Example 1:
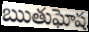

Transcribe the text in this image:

ఋతుఘోష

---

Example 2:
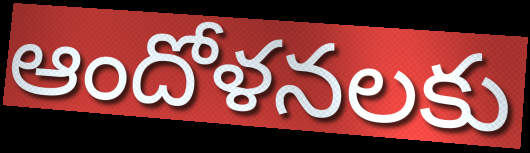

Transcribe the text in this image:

ఆందోళనలకు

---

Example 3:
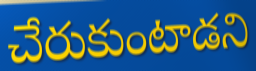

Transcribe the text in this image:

చేరుకుంటాడని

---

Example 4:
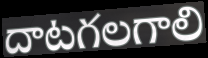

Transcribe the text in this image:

దాటగలగాలి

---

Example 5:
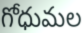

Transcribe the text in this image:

గోధుమల